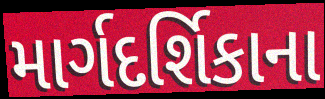
માર્ગદર્શિકાના